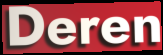
Deren